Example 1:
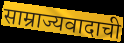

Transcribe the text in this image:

साम्राज्यवादाची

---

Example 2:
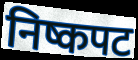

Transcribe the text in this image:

निष्कपट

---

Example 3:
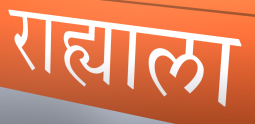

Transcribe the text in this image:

राह्याला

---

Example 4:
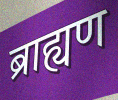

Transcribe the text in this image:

ब्राह्यण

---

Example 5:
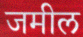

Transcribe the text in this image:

जमील